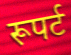
रूपर्ट